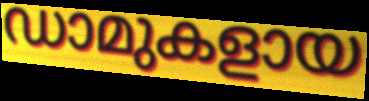
ഡാമുകളായ